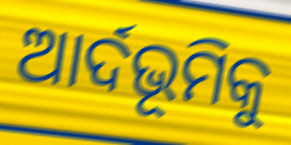
ଆର୍ଦଭୂମିକୁ